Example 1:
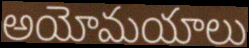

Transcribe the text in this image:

అయోమయాలు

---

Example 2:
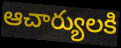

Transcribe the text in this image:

ఆచార్యులకి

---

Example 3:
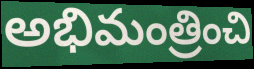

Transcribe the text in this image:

అభిమంత్రించి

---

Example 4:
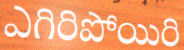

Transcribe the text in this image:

ఎగిరిపోయిరి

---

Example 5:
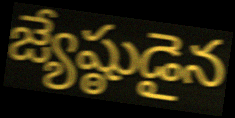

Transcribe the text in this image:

జ్యేష్ఠుడైన